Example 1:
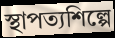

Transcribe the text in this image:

স্থাপত্যশিল্পে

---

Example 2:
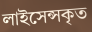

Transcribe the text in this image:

লাইসেন্সকৃত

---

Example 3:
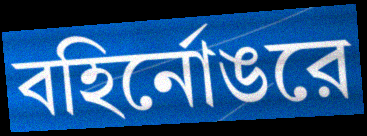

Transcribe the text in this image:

বহির্নোঙরে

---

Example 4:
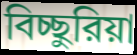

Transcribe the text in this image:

বিচ্ছুরিয়া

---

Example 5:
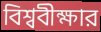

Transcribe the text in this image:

বিশ্ববীক্ষার